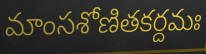
మాంసశోణితకర్దమః